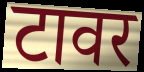
टावर